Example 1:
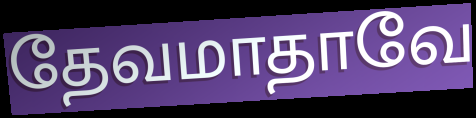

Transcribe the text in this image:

தேவமாதாவே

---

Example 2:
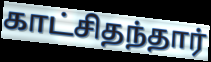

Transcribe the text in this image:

காட்சிதந்தார்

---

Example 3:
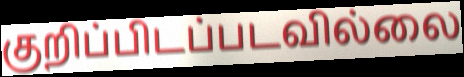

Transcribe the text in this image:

குறிப்பிடப்படவில்லை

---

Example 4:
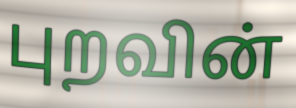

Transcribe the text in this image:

புறவின்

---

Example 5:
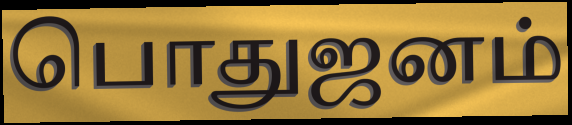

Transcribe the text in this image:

பொதுஜனம்